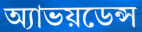
অ্যাভয়ডেন্স